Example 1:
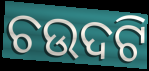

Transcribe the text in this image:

ଚଉଦଟି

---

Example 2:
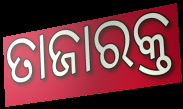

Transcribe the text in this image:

ତାଜାରକ୍ତ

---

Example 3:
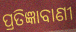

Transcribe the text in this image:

ପ୍ରତିଜ୍ଞାବାଣୀ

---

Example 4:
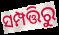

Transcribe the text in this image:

ସମ୍ପତ୍ତିରୁ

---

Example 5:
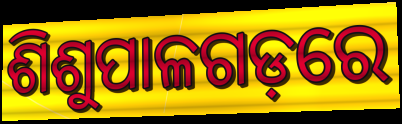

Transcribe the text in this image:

ଶିଶୁପାଳଗଡ଼ରେ